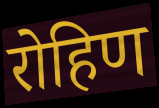
रोहिण